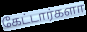
கேட்டார்களா